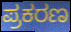
ಪ್ರಕರಣ